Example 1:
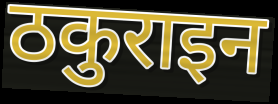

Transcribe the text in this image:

ठकुराइन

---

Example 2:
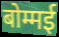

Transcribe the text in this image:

बोम्मई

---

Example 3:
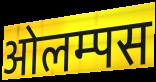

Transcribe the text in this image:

ओलम्पस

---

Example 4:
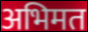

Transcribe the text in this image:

अभिमत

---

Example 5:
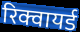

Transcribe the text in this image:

रिक्वायर्ड